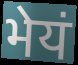
भेयं